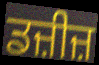
ਡਜ਼ੀਜ਼